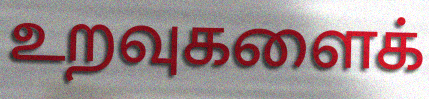
உறவுகளைக்